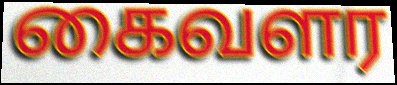
கைவளர